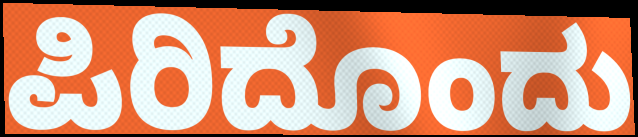
ಪಿರಿದೊಂದು